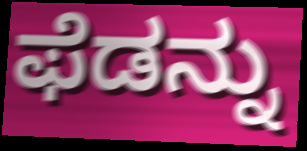
ಫೆಡನ್ನು